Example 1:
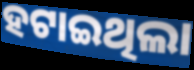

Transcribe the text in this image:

ହଟାଇଥିଲା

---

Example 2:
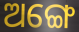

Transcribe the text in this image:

ଅଙ୍ଗେ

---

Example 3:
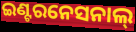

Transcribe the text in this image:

ଇଣ୍ଟରନେସନାଲ୍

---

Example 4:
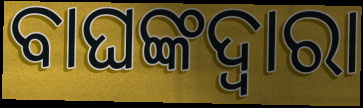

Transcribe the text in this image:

ବାଘଙ୍କଦ୍ୱାରା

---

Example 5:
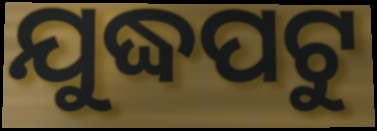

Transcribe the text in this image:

ଯୁଦ୍ଧପଟୁ